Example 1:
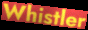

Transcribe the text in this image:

Whistler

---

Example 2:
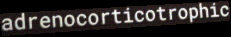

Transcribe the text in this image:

adrenocorticotrophic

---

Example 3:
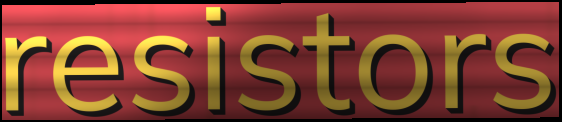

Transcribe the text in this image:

resistors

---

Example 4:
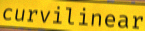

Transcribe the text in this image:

curvilinear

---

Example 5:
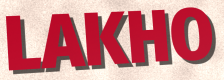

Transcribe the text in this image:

LAKHO